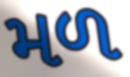
મળ